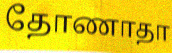
தோணாதா